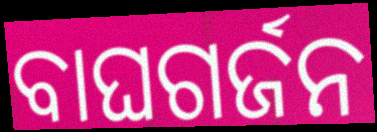
ବାଘଗର୍ଜନ